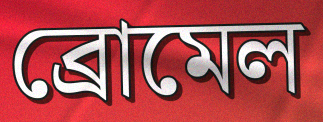
ব্রোমেল